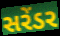
સરેંડર